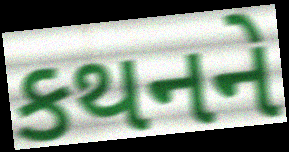
કથનને